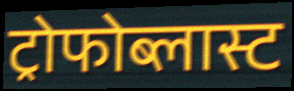
ट्रोफोब्लास्ट